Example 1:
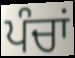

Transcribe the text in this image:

ਪੰਚਾਂ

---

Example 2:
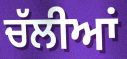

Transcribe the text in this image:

ਚੱਲੀਆਂ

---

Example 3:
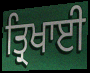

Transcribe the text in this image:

ਤ੍ਰਿਖਾਈ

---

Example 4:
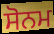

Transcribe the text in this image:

ਸੋਨਮ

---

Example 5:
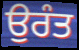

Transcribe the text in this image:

ਉਰੰਤ